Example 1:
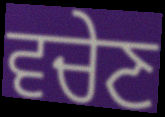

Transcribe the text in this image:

ਵਚੇਣ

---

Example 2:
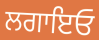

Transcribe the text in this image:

ਲਗਾਇਓ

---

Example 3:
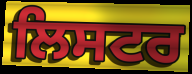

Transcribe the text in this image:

ਲਿਸਟਰ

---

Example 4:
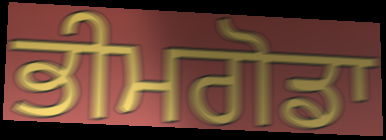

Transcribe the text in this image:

ਭੀਮਗੋਡਾ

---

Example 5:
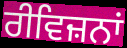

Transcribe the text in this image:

ਰੀਵਿਜ਼ਨਾਂ